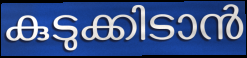
കുടുക്കിടാൻ